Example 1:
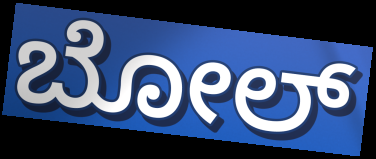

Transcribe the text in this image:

ಬೋಲ್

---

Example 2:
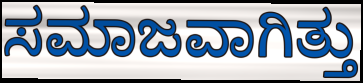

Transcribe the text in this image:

ಸಮಾಜವಾಗಿತ್ತು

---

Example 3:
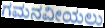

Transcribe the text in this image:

ಗಮನವೀಯಲು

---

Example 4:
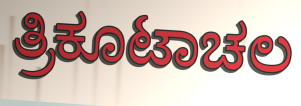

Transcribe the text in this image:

ತ್ರಿಕೂಟಾಚಲ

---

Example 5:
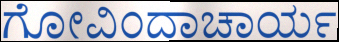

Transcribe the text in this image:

ಗೋವಿಂದಾಚಾರ್ಯ